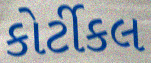
કોર્ટીકલ